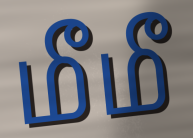
மீமீ